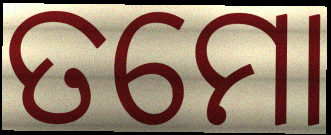
ତମୋ